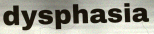
dysphasia